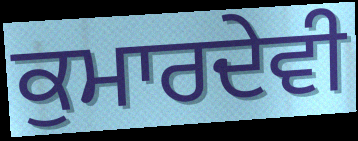
ਕੁਮਾਰਦੇਵੀ